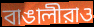
বাঙালীরাও